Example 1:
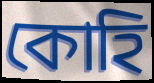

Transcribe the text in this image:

কোহি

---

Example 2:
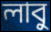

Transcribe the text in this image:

লাবু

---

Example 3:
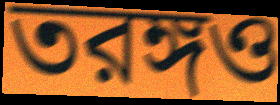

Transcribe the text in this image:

তরঙ্গও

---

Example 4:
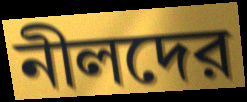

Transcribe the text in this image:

নীলদের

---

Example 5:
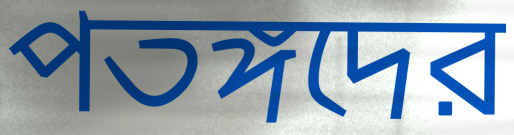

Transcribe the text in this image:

পতঙ্গদের